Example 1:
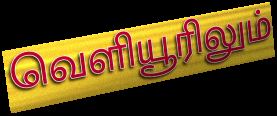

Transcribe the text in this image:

வெளியூரிலும்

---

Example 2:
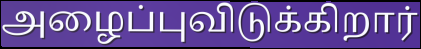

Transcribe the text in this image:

அழைப்புவிடுக்கிறார்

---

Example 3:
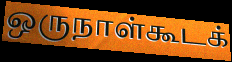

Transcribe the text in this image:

ஒருநாள்கூடக்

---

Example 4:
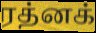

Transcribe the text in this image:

ரத்னக்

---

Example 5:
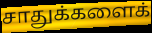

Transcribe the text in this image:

சாதுக்களைக்